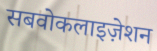
सबवोकलाइज़ेशन